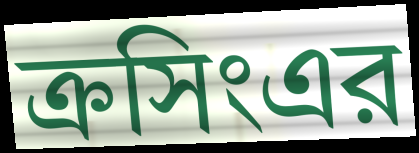
ক্রসিংএর